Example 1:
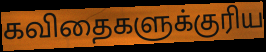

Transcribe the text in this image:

கவிதைகளுக்குரிய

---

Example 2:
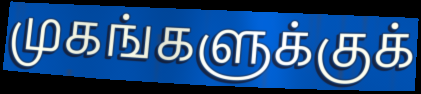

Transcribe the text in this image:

முகங்களுக்குக்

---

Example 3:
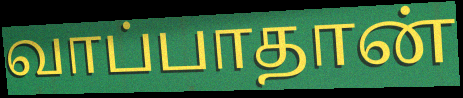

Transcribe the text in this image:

வாப்பாதான்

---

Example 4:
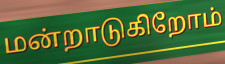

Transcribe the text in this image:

மன்றாடுகிறோம்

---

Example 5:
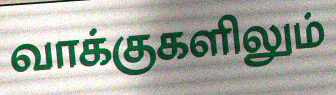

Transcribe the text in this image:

வாக்குகளிலும்